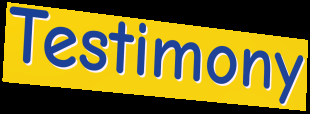
Testimony